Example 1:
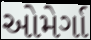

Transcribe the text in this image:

ઓમેર્ગા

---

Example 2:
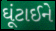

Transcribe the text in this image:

ઘૂંટાઈને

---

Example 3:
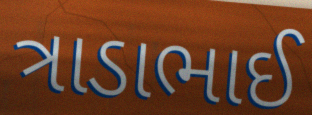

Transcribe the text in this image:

ત્રાડાભાઈ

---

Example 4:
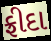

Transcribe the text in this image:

ફ્રીદા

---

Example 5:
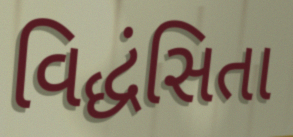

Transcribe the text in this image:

વિદ્ધંસિતા